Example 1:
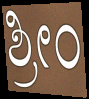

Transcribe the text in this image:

ಶ್ರೀಂ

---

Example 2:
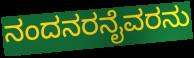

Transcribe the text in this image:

ನಂದನರನೈವರನು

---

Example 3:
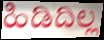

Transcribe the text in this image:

ಹಿಡಿದಿಲ್ಲ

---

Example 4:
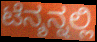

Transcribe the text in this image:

ಟೆನ್ಶನ್ನಲ್ಲಿ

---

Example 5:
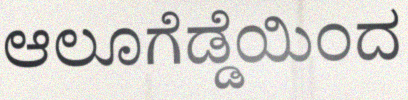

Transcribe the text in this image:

ಆಲೂಗೆಡ್ಡೆಯಿಂದ